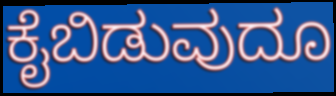
ಕೈಬಿಡುವುದೂ